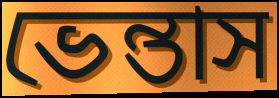
ভেন্তাস